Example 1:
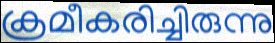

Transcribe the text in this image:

ക്രമീകരിച്ചിരുന്നു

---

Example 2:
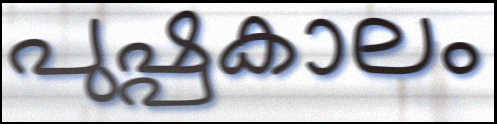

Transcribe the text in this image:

പുഷ്പകാലം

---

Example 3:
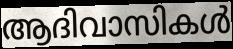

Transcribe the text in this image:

ആദിവാസികൾ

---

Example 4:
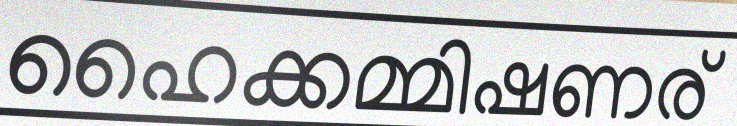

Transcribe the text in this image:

ഹൈക്കമ്മിഷണര്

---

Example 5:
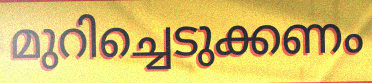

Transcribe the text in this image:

മുറിച്ചെടുക്കണം